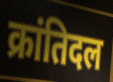
क्रांतिदल